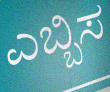
ಎಬ್ಬಿಸ